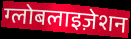
ग्लोबलाइज़ेशन